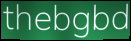
thebgbd